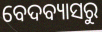
ବେଦବ୍ୟାସରୁ